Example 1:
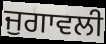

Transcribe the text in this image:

ਜੁਗਾਵਲੀ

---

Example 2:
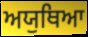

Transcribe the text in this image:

ਅਯੁਥਿਆ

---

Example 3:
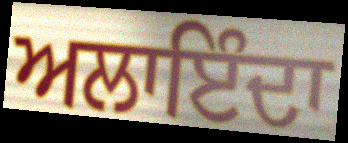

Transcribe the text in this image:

ਅਲਾਇੰਦਾ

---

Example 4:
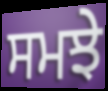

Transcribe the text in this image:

ਸਮਝੇ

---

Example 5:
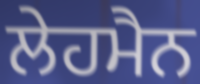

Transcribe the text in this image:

ਲੇਹਮੈਨ